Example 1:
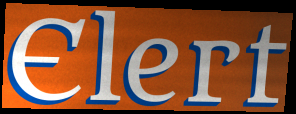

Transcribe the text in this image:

Elert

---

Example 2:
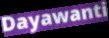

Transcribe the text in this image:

Dayawanti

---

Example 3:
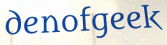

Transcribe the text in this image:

denofgeek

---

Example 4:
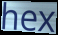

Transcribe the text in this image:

hex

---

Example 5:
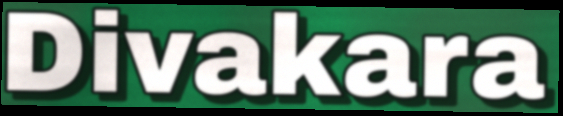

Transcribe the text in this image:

Divakara